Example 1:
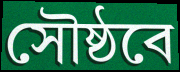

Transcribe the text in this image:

সৌষ্ঠবে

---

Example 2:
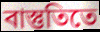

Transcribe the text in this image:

বাস্তুতিতে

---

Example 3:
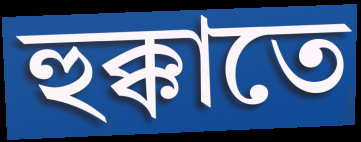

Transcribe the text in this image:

হুক্কাতে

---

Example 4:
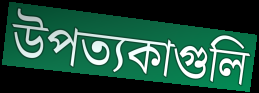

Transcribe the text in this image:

উপত্যকাগুলি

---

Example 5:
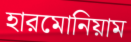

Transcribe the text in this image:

হারমোনিয়াম